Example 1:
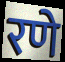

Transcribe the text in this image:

रणे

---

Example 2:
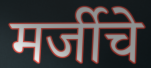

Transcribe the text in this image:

मर्जीचे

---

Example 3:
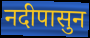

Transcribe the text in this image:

नदीपासुन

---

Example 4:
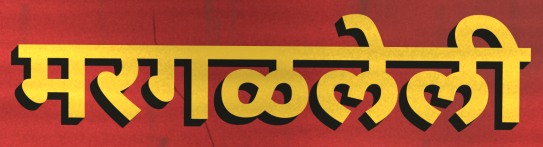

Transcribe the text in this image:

मरगळलेली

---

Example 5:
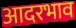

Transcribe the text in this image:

आदरभाव